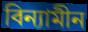
বিন্যামীন